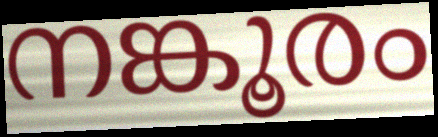
നങ്കൂരം